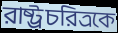
রাষ্ট্রচরিত্রকে